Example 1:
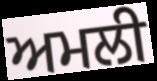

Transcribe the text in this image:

ਅਮਲੀ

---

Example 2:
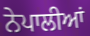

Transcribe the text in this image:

ਨੇਪਾਲੀਆਂ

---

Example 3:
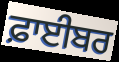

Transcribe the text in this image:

ਫ਼ਾਈਬਰ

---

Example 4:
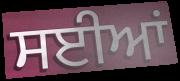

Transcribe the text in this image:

ਸਈਆਂ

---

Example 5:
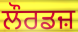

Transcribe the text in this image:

ਲੌਰਡਜ਼